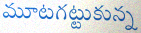
మూటగట్టుకున్న